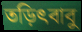
তড়িৎবাবু